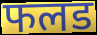
फलड